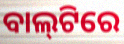
ବାଲ୍‌ଟିରେ